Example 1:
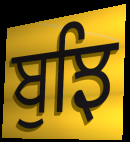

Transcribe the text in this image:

ਬੁਝਿ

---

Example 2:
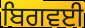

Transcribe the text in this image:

ਬਿਗਵਈ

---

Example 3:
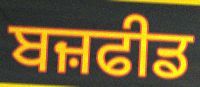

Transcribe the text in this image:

ਬਜ਼ਫੀਡ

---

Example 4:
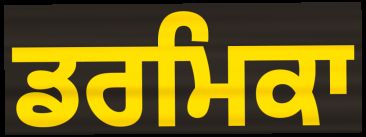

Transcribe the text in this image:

ਡਰਮਿਕਾ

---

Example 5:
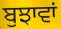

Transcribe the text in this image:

ਬੁਝਾਵਾਂ